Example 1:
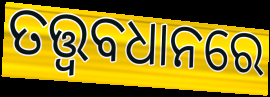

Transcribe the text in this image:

ତତ୍ତ୍ୱବଧାନରେ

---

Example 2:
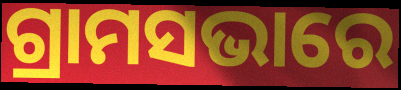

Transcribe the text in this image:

ଗ୍ରାମସଭାରେ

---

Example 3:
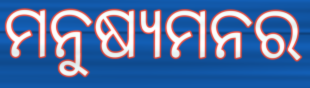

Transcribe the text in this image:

ମନୁଷ୍ୟମନର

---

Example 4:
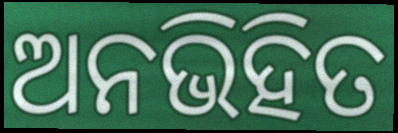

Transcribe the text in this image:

ଅନଭିହିତ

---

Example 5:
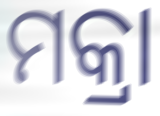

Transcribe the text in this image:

ମକ୍ରା